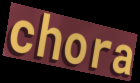
chora